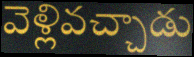
వెళ్లివచ్చాడు